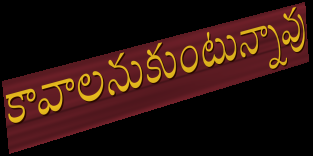
కావాలనుకుంటున్నావు